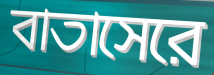
বাতাসেরে